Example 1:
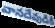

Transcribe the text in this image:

వానదేవుడికి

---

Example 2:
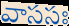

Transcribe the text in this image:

వాససః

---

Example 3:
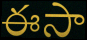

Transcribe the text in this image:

ఈసా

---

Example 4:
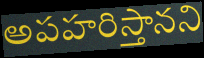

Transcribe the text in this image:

అపహరిస్తానని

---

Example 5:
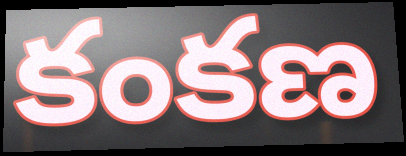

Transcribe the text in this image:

కంకణ